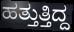
ಹತ್ತುತ್ತಿದ್ದ